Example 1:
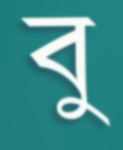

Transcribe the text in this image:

বু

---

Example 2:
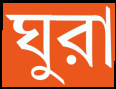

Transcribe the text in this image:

ঘুরা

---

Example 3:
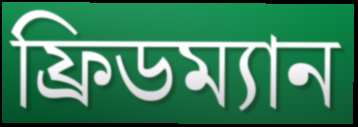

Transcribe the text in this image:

ফ্রিডম্যান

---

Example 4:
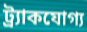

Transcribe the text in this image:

ট্র্যাকযোগ্য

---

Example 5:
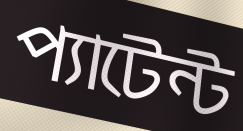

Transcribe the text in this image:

প্যাটেন্ট